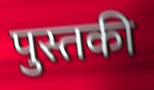
पुस्तकी